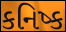
કનિષ્ક